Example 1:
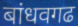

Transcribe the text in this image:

बांधवगढ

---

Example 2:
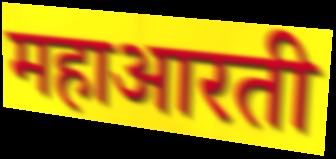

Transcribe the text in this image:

महाआरती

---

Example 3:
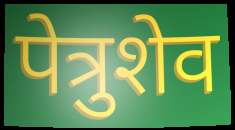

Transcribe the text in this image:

पेत्रुशेव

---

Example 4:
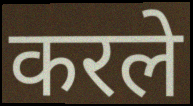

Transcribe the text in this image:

करले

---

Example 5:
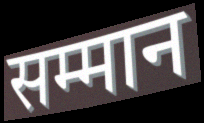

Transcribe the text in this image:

सम्‍मान